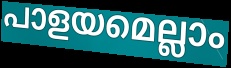
പാളയമെല്ലാം